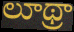
లూథ్రా